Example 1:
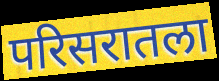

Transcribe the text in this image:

परिसरातला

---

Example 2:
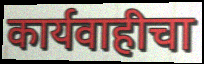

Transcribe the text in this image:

कार्यवाहीचा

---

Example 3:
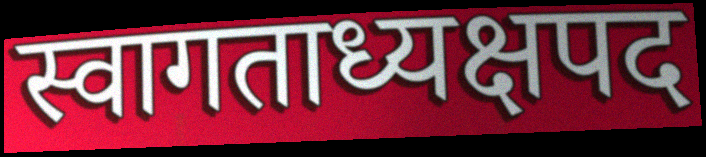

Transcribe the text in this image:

स्वागताध्यक्षपद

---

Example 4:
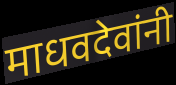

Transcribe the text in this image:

माधवदेवांनी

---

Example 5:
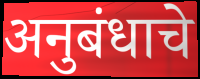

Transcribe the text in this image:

अनुबंधाचे